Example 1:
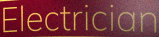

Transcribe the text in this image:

Electrician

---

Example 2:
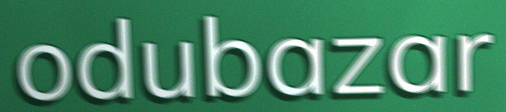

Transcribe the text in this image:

odubazar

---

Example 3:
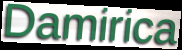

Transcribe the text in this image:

Damirica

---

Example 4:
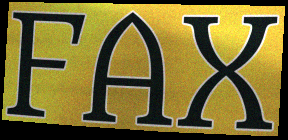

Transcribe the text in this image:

FAX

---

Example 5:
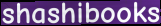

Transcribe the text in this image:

shashibooks